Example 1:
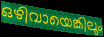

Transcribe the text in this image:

ഒഴിവായെങ്കിലും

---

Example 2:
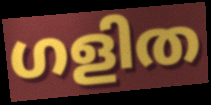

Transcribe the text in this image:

ഗളിത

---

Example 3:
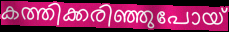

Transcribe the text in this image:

കത്തിക്കരിഞ്ഞുപോയ്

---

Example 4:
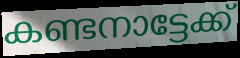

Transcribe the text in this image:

കണ്ടനാട്ടേക്ക്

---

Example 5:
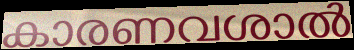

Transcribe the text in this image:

കാരണവശാൽ